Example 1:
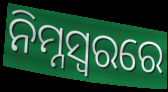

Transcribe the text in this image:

ନିମ୍ନସ୍ୱରରେ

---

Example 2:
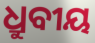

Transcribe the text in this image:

ଧ୍ରୁବୀୟ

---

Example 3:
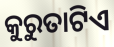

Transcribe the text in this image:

କୁରୁତାଟିଏ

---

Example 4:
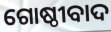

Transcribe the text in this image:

ଗୋଷ୍ଠୀବାଦ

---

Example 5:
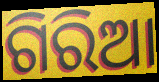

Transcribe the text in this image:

ଗିରିଆ